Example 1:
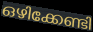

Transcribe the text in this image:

ഒഴിക്കേണ്ടി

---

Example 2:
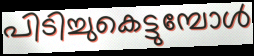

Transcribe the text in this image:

പിടിച്ചുകെട്ടുമ്പോൾ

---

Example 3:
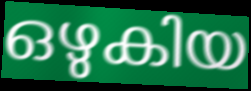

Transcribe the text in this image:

ഒഴുകിയ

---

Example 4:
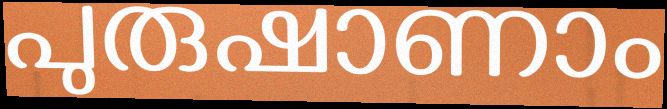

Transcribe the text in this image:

പുരുഷാണാം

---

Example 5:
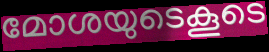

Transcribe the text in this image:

മോശയുടെകൂടെ